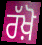
ਰੱਖ਼ੋ